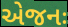
એજનઃ